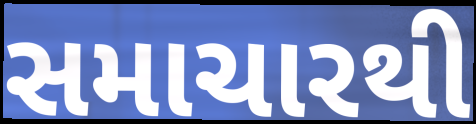
સમાચારથી